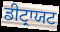
ਡੀਟ੍ਰਾਯਟ